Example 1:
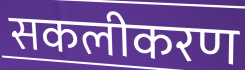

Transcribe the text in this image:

सकलीकरण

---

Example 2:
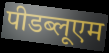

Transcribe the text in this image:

पीडब्लूएम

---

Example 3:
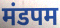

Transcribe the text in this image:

मंडपम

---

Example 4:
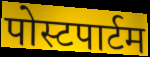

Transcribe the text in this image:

पोस्टपार्टम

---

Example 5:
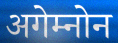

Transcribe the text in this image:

अगेम्नोन